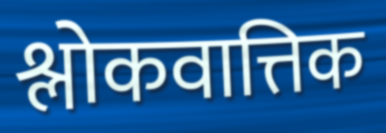
श्लोकवात्तिक